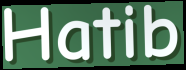
Hatib